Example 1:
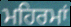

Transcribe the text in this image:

ਮਹਿਰਮਾਂ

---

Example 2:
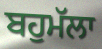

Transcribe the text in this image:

ਬਹੁਮੱਲਾ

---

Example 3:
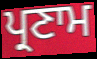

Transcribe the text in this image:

ਪ੍ਰਣਾਮ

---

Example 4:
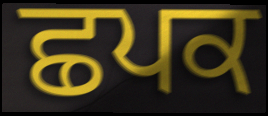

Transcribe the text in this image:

ਛਪਕ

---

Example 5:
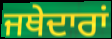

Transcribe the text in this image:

ਜਥੇਦਾਰਾਂ